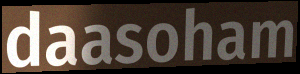
daasoham